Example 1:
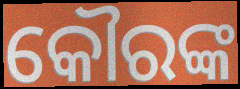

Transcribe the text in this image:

କୌରଙ୍କ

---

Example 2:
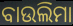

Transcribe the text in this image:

ବାଉଲିମା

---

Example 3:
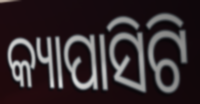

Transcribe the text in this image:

କ୍ୟାପାସିଟି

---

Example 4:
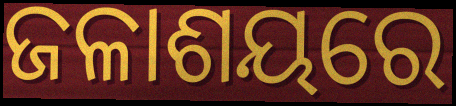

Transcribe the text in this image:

ଜଳାଶୟରେ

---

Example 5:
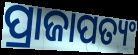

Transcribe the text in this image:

ପ୍ରାଜାପତ୍ୟଂ